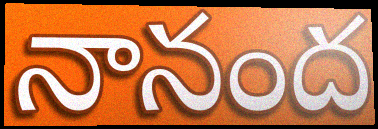
నానంద